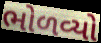
ભોળવ્યો